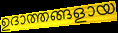
ഉദാത്തങ്ങളായ